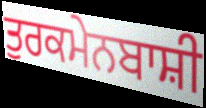
ਤੁਰਕਮੇਨਬਾਸ਼ੀ